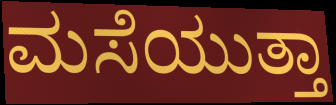
ಮಸೆಯುತ್ತಾ